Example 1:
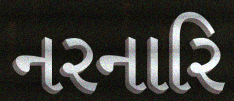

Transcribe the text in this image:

નરનારિ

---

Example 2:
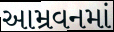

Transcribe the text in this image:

આમ્રવનમાં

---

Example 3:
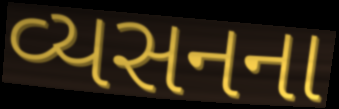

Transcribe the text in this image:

વ્યસનના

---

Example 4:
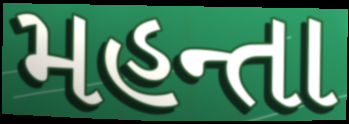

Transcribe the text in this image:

મહન્તા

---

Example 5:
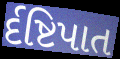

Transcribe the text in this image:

ર્દષ્ટિપાત